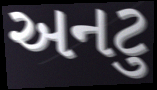
અનટુ